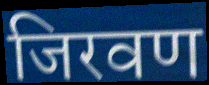
जिरवण